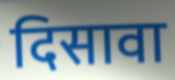
दिसावा